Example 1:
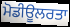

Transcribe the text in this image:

ਮੋਡੀਊਲਰਤਾ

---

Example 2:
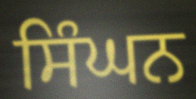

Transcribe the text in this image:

ਸਿੰਘਨ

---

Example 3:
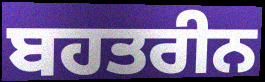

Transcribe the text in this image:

ਬਹਤਰੀਨ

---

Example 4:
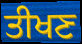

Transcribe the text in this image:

ਤੀਖਣ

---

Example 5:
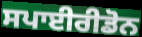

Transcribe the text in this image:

ਸਪਾਈਰੀਡੋਨ